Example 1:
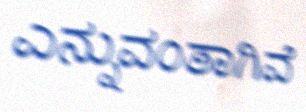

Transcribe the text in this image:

ಎನ್ನುವಂತಾಗಿವೆ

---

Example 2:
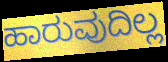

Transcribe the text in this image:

ಹಾರುವುದಿಲ್ಲ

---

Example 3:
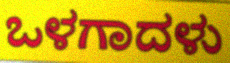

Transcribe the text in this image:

ಒಳಗಾದಳು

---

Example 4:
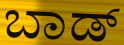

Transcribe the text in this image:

ಬಾಡ್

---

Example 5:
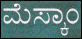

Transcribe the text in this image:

ಮೆಸ್ಕಾಂ